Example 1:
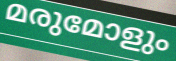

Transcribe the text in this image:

മരുമോളും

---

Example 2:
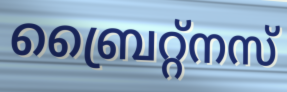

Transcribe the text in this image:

ബ്രൈറ്റ്നസ്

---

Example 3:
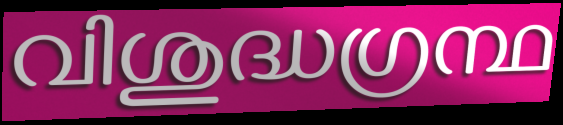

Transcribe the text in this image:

വിശുദ്ധഗ്രന്ഥ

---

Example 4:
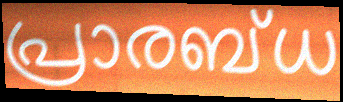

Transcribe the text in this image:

പ്രാരബ്ധ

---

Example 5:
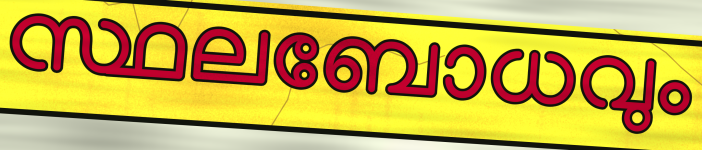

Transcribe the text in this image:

സ്ഥലബോധവും